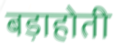
बड़ाहोती